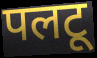
पलटू